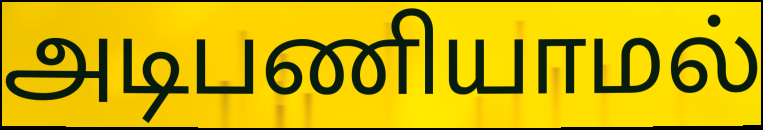
அடிபணியாமல்